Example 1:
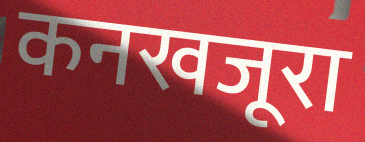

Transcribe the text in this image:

कनखजूरा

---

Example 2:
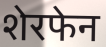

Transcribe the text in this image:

शेरफेन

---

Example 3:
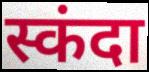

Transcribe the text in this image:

स्कंदा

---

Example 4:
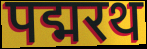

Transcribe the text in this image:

पद्मरथ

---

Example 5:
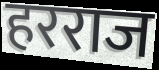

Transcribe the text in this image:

हरराज